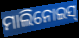
ମାଲିନୋଇସ୍